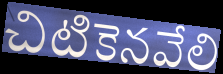
చిటికెనవేలి